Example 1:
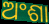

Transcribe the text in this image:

ଅଂଶା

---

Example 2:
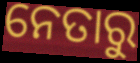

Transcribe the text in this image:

ନେତାରୁ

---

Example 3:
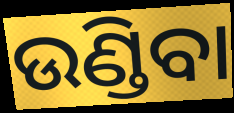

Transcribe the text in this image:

ଉଣ୍ଡିବା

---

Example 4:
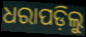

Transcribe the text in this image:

ଧରାପଡ଼ିଲୁ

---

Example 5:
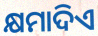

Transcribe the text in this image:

କ୍ଷମାଦିଏ